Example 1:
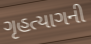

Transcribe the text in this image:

ગૃહત્યાગની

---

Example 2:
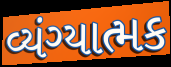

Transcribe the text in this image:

વ્યંગ્યાત્મક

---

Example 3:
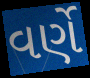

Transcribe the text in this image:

વર્ણે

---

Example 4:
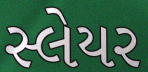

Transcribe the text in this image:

સ્લેયર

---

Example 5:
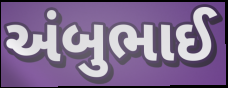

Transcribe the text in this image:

અંબુભાઈ